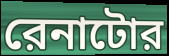
রেনাটোর